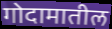
गोदामातील